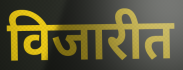
विजारीत